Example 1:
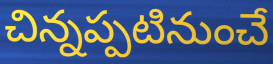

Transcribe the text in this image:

చిన్నప్పటినుంచే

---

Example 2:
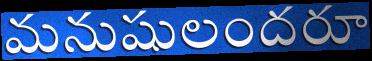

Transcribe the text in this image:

మనుషులందరూ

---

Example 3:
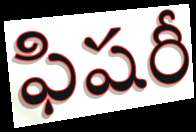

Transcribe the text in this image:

ఫిషరీ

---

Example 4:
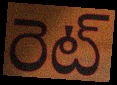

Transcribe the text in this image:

రెట్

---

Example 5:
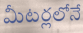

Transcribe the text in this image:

మీటర్లలోనే